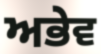
ਅਭੇਵ